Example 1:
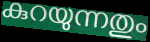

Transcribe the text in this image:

കുറയുന്നതും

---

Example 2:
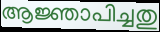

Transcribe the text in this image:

ആജ്ഞാപിച്ചതു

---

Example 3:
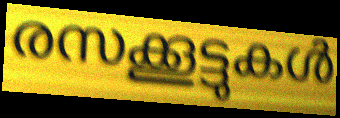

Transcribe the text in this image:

രസക്കൂട്ടുകൾ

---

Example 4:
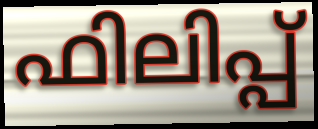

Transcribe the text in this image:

ഫിലിപ്പ്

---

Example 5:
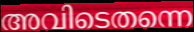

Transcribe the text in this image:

അവിടെതന്നെ